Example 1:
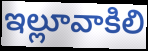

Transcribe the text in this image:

ఇల్లూవాకిలి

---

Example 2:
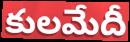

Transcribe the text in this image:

కులమేదీ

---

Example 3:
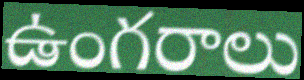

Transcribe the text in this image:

ఉంగరాలు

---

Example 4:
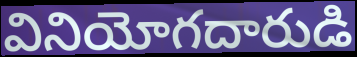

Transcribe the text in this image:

వినియోగదారుడి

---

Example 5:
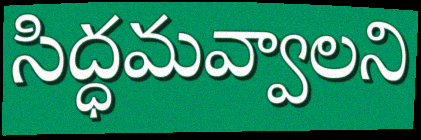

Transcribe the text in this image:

సిద్ధమవ్వాలని